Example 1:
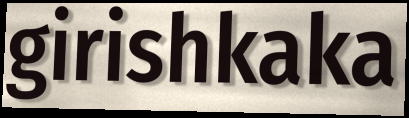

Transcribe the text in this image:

girishkaka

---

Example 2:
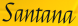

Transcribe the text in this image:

Santana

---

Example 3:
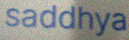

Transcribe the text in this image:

saddhya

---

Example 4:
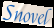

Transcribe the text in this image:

Snovel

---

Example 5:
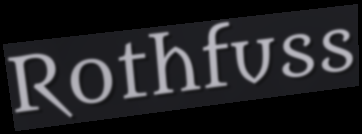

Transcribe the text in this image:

Rothfuss